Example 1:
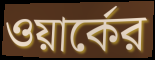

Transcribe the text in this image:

ওয়ার্কের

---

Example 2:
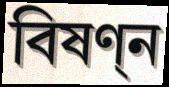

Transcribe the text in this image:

বিষণ্ন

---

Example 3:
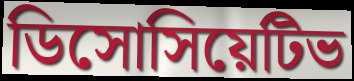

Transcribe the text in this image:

ডিসোসিয়েটিভ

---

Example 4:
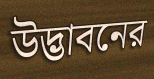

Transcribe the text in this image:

উদ্ভাবনের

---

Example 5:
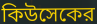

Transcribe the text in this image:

কিউসেকের